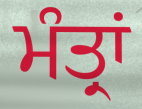
ਮੰਤ੍ਰਾਂ